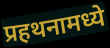
प्रहथनामध्ये